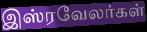
இஸ்ரவேலர்கள்